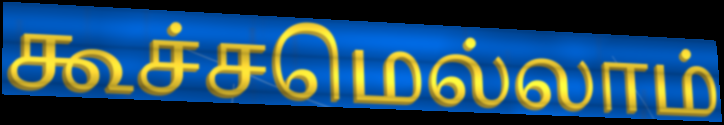
கூச்சமெல்லாம்